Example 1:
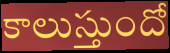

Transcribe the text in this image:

కాలుస్తుందో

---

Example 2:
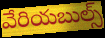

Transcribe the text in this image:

వేరియబుల్స్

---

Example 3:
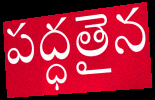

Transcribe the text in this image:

పద్ధతైన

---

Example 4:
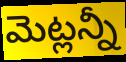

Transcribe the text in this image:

మెట్లన్నీ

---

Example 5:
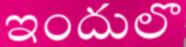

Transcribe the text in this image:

ఇందులొ